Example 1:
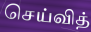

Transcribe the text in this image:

செய்வித்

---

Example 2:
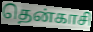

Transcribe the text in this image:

தென்காசி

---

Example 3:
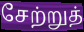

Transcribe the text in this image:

சேற்றுத்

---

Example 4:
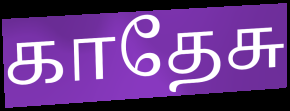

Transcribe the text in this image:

காதேசு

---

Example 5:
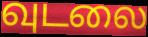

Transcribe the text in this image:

வுடலை